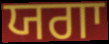
ਯਗਾ